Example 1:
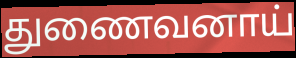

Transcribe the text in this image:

துணைவனாய்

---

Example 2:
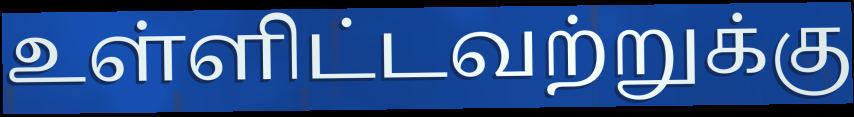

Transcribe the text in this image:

உள்ளிட்டவற்றுக்கு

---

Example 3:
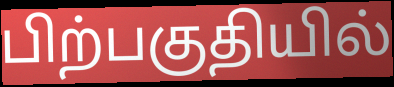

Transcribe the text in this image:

பிற்பகுதியில்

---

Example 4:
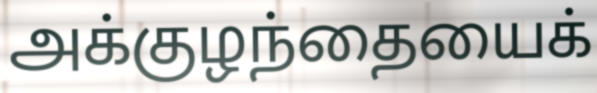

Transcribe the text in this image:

அக்குழந்தையைக்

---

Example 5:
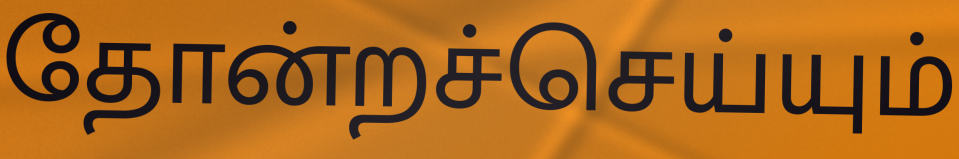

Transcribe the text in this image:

தோன்றச்செய்யும்